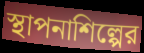
স্থাপনাশিল্পের